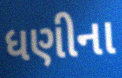
ધણીના